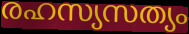
രഹസ്യസത്യം